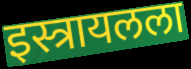
इस्त्रायलला